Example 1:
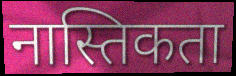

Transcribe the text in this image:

नास्तिकता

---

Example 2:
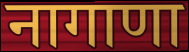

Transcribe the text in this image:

नागाणा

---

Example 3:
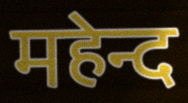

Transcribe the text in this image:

महेन्द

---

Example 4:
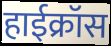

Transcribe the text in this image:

हाईक्रॉस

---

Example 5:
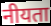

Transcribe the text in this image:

नीयता